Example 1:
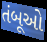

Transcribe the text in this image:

તંબૂઓ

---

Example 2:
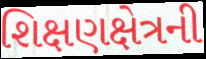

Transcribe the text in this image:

શિક્ષણક્ષેત્રની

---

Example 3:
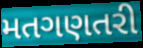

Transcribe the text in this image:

મતગણતરી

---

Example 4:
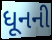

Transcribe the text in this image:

ધૂનની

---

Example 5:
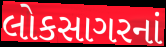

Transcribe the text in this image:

લોકસાગરનાં